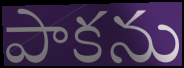
పాకను